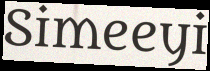
Simeeyi